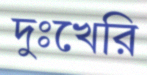
দুঃখেরি